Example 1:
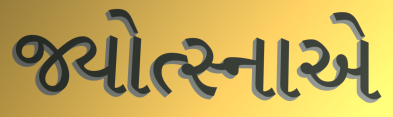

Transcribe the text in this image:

જ્યોત્સ્નાએ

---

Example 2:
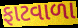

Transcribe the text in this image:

ફાટવાળા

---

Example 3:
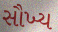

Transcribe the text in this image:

સૌખ્ય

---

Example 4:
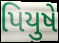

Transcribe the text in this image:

પિયુષે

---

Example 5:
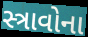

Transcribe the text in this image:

સ્ત્રાવોના